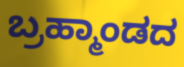
ಬ್ರಹ್ಮಾಂಡದ